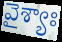
వైశ్యాః